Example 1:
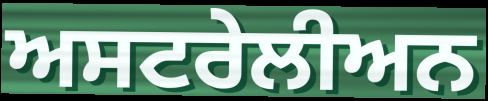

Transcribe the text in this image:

ਅਸਟਰੇਲੀਅਨ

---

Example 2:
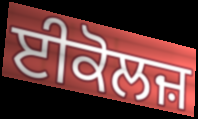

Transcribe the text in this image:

ਈਕੋਲਜ਼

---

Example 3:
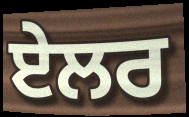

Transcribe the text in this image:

ਏਲਰ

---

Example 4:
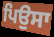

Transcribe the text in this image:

ਪਿਉਸਾ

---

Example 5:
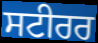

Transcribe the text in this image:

ਸਟੀਰਰ